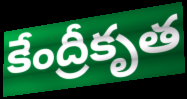
కేంద్రీకృత